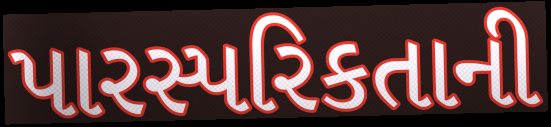
પારસ્પરિકતાની